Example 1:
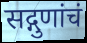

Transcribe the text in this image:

सद्गुणांचं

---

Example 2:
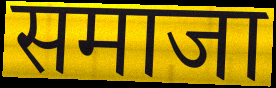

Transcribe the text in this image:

समाजा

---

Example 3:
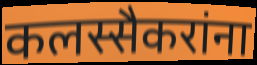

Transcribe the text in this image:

कलस्सैकरांना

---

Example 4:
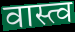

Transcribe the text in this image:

वास्त्व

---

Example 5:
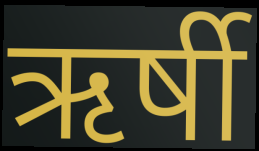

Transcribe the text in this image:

ऋर्षी